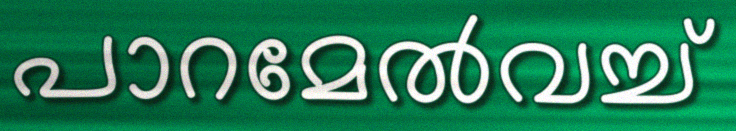
പാറമേൽവച്ച്